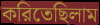
করিতেছিলাম